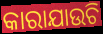
କାରାଯାଉଚି